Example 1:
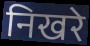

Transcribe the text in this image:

निखरे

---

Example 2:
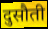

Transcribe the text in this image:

दुसौती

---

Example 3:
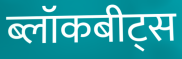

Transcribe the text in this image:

ब्लॉकबीट्स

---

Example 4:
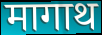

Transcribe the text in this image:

मागाथ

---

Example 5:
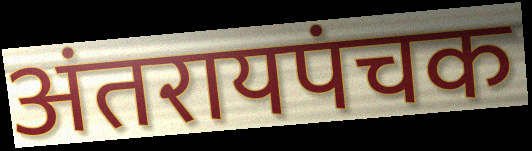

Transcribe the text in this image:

अंतरायपंचक